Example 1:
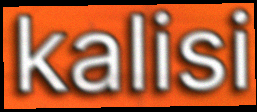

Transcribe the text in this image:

kalisi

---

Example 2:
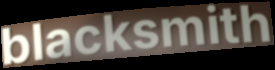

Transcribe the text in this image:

blacksmith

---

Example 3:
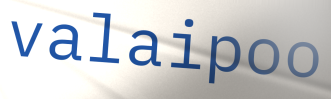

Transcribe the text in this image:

valaipoo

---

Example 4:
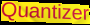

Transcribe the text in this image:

Quantizer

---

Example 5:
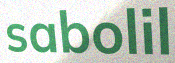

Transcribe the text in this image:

sabolil